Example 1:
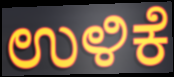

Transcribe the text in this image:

ಉಳಿಕೆ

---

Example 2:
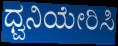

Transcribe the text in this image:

ಧ್ವನಿಯೇರಿಸಿ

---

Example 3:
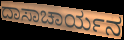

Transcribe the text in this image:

ದಾಸಾಚಾರ್ಯನ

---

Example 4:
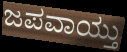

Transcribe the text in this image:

ಜಪವಾಯ್ತು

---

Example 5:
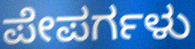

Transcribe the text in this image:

ಪೇಪರ್ಗಳು